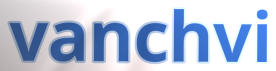
vanchvi